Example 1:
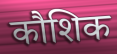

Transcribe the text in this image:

कौशिक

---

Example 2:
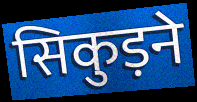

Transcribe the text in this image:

सिकुड़ने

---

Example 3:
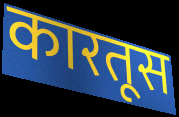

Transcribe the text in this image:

कारतूस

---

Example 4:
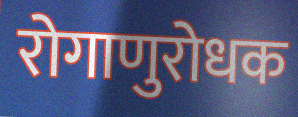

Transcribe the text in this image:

रोगाणुरोधक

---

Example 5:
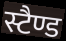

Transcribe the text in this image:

स्टैण्ड